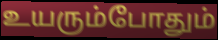
உயரும்போதும்